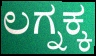
ಲಗ್ನಕ್ಕ